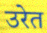
उरेत